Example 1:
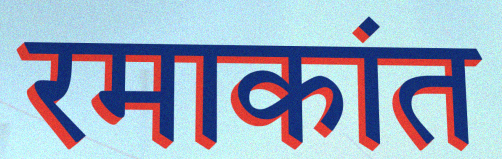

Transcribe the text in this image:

रमाकांत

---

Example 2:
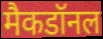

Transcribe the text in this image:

मैकडॉनल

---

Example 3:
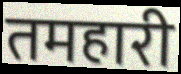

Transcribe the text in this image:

तमहारी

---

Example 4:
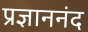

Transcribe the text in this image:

प्रज्ञाननंद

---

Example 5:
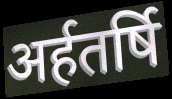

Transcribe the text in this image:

अर्हतर्षि